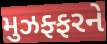
મુઝફ્ફરને